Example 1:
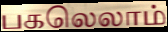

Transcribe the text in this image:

பகலெலாம்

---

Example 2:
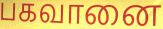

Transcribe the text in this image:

பகவானை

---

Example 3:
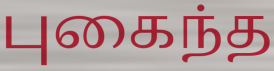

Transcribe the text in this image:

புகைந்த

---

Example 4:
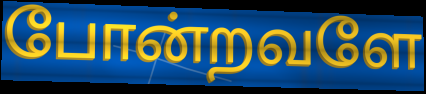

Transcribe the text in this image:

போன்றவளே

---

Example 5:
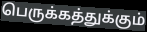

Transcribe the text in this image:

பெருக்கத்துக்கும்